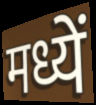
मध्यें